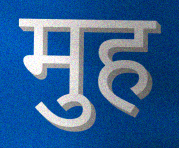
मुह